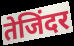
तेजिंदर